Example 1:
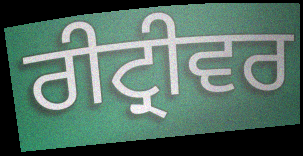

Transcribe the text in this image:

ਰੀਟ੍ਰੀਵਰ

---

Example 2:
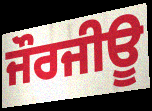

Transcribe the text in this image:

ਜੌਰਜੀਊ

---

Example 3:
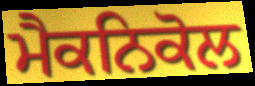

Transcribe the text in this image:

ਮੈਕਨਿਕੋਲ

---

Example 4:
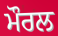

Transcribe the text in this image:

ਮੌਰਲ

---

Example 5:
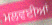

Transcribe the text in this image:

ਮਲਵਈਆਂ